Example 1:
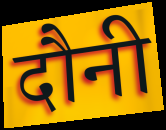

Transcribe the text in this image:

दौनी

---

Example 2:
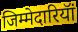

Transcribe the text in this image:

जिम्मेदारियॉं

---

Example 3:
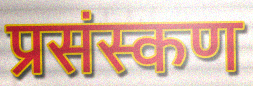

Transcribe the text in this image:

प्रसंस्कण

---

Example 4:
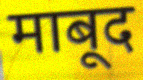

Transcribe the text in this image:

माबूद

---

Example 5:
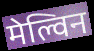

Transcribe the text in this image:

मेल्विन